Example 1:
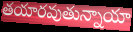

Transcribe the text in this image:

తయారవుతున్నాయా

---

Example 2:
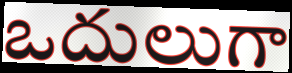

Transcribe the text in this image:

ఒదులుగా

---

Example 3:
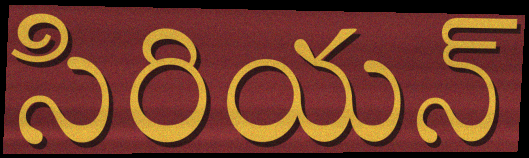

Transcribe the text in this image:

సిరియన్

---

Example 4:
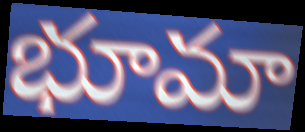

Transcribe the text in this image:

భూమా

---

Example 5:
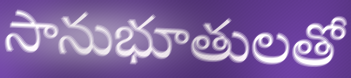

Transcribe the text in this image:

సానుభూతులతో